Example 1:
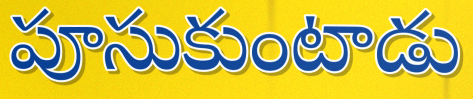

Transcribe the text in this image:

పూసుకుంటాడు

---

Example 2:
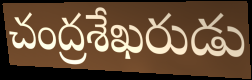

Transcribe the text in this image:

చంద్రశేఖరుడు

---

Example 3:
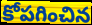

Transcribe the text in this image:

కోపగించిన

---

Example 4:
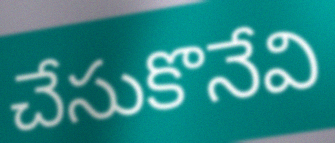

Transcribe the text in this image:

చేసుకొనేవి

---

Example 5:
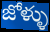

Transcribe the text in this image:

జోళ్ళు